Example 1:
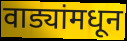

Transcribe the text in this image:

वाड्यांमधून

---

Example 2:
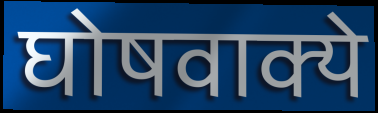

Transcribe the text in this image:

घोषवाक्ये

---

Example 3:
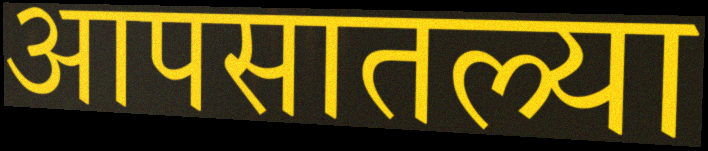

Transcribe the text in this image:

आपसातल्या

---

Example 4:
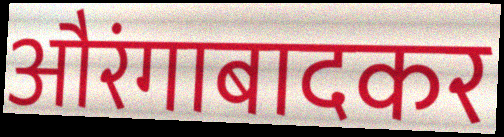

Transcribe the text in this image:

औरंगाबादकर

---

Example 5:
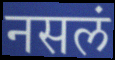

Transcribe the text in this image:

नसलं